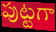
పుట్టగా